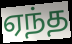
ஏந்த